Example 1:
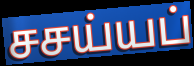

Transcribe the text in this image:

சசய்யப்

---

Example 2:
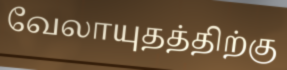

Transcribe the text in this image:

வேலாயுதத்திற்கு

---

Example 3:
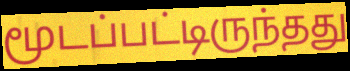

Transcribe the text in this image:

மூடப்பட்டிருந்தது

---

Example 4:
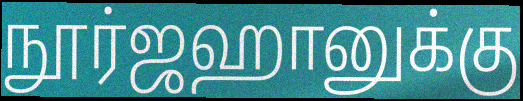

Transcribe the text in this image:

நூர்ஜஹானுக்கு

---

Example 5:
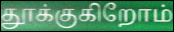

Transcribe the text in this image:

தூக்குகிறோம்